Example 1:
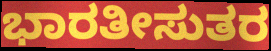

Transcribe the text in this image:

ಭಾರತೀಸುತರ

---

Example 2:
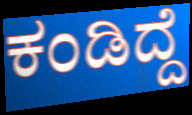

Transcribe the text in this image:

ಕಂಡಿದ್ದೆ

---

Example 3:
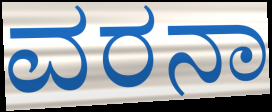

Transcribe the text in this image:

ವರನಾ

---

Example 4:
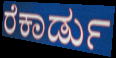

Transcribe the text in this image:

ರೆಕಾರ್ಡು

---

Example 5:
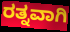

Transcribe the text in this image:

ರತ್ನವಾಗಿ